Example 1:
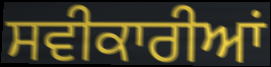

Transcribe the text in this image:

ਸਵੀਕਾਰੀਆਂ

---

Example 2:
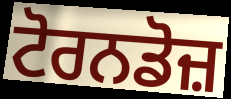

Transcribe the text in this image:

ਟੋਰਨਡੋਜ਼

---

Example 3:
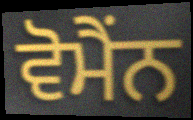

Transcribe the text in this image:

ਵੋਮੈਂਨ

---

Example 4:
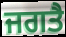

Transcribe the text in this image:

ਜਗਤੈ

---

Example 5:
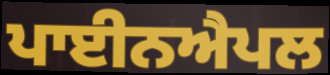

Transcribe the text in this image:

ਪਾਈਨਐਪਲ